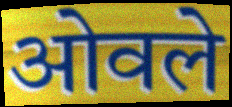
ओवले